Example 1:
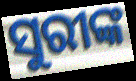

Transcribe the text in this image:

ସୁରୀଙ୍କ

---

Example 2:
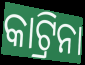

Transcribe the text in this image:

କାଟ୍ରିନା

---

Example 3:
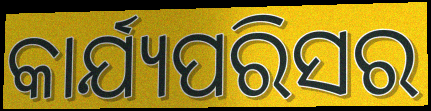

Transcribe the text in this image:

କାର୍ଯ୍ୟପରିସର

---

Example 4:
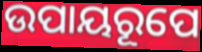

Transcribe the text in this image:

ଉପାୟରୂପେ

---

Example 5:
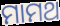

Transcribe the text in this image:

ମାମଥ